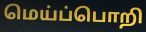
மெய்ப்பொறி